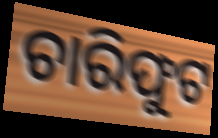
ଚାରିଫୁଟ